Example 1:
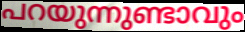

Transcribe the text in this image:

പറയുന്നുണ്ടാവും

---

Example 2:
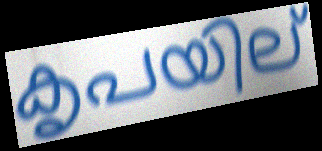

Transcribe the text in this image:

കൃപയില്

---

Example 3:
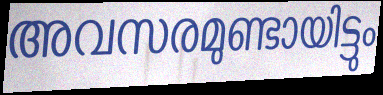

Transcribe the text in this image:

അവസരമുണ്ടായിട്ടും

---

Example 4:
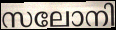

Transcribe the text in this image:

സലോനി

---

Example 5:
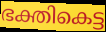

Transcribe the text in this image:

ഭക്തികെട്ട